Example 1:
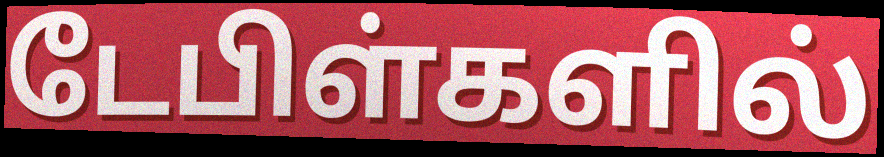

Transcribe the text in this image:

டேபிள்களில்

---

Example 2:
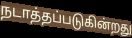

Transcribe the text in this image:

நடாத்தப்படுகின்றது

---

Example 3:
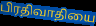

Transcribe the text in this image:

பிரதிவாதியை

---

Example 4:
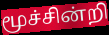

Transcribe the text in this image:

மூச்சின்றி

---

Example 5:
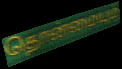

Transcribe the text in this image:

தொன்மையும்